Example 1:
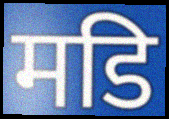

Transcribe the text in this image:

मडि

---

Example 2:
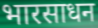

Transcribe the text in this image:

भारसाधन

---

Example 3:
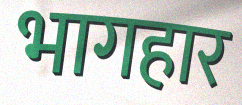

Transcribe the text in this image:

भागहार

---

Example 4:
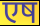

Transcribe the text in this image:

एष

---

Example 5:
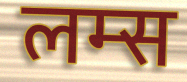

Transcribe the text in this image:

लम्स